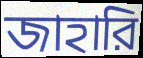
জাহারি